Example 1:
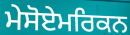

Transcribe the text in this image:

ਮੇਸੋਏਮਰਿਕਨ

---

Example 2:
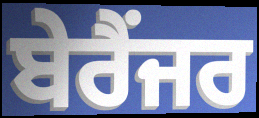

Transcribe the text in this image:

ਬੇਰੈਂਜਰ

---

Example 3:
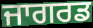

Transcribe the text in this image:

ਜਾਗਰਡ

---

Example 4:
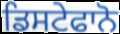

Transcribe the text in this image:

ਡਿਸਟੇਫਾਨੋ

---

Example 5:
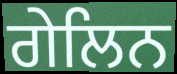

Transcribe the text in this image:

ਗੇਲਿਨ